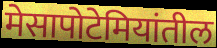
मेसापोटेमियांतील